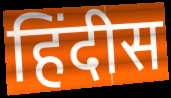
हिंदीस